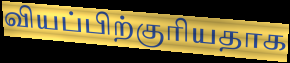
வியப்பிற்குரியதாக